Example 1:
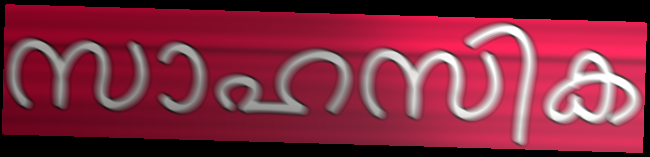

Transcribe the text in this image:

സാഹസിക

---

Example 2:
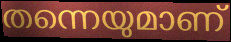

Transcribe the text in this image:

തന്നെയുമാണ്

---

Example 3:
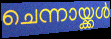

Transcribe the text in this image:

ചെന്നായ്ക്കൾ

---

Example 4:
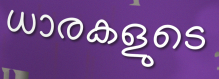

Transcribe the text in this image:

ധാരകളുടെ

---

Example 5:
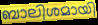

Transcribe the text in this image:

ബാലിശമായി